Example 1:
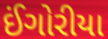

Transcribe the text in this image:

ઈંગોરીયા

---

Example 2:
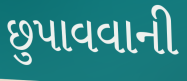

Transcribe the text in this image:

છુપાવવાની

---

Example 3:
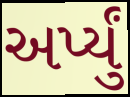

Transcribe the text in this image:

અર્પ્યું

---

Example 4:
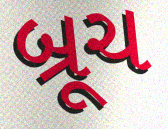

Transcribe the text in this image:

બ્રૂચ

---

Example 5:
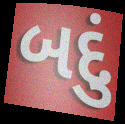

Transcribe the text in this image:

બદું